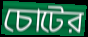
চোটের